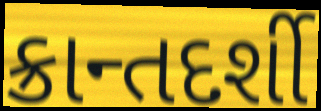
ક્રાન્તદર્શી